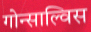
गोन्साल्विस